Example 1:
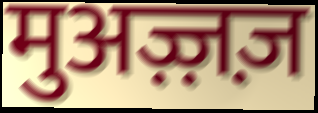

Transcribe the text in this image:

मुअज़्ज़ज़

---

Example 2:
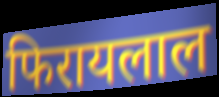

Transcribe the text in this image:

फिरायलाल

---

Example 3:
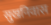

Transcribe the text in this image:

सुखनिवास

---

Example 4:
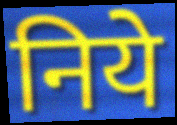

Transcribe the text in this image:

निये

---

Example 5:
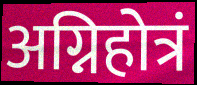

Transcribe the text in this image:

अग्निहोत्रं